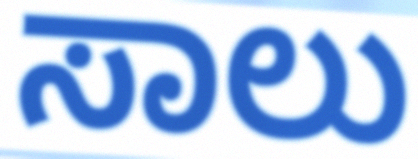
ಸಾಲು